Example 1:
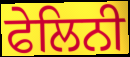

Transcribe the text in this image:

ਫੇਲਿਨੀ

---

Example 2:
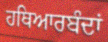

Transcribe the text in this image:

ਹਥਿਆਰਬੰਦਾਂ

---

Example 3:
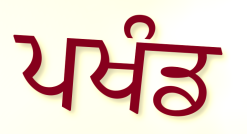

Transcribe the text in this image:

ਪਖੰਡ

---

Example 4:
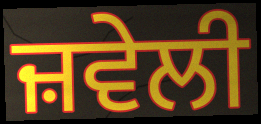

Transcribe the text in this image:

ਜ਼ਵੇਲੀ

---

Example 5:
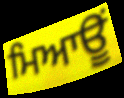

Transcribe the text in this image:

ਮਿਆਊਂ